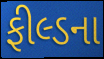
ફીલ્ડના